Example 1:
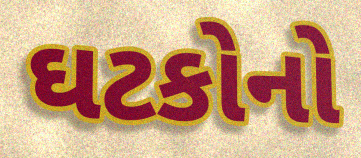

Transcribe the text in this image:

ઘટકોનો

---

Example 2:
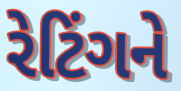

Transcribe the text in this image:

રેટિંગને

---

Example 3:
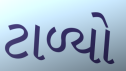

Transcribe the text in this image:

ટાળ્યો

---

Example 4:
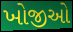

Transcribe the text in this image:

ખોજીઓ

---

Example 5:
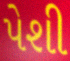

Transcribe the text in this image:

પેશી